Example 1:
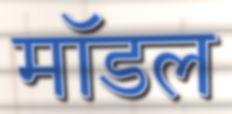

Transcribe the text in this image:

मॉडल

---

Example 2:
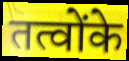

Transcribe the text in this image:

तत्वोंके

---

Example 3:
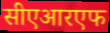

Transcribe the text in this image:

सीएआरएफ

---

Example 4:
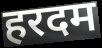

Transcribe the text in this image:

हरदम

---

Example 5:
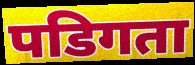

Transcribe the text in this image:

पडिगता